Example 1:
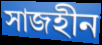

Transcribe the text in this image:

সাজহীন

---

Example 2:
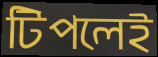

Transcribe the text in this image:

টিপলেই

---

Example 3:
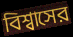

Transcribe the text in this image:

বিশ্বাসের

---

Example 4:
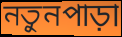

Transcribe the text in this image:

নতুনপাড়া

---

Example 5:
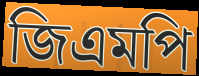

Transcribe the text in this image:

জিএমপি